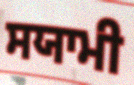
ਸਯਾਮੀ